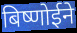
बिष्णोईने